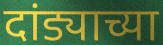
दांड्याच्या